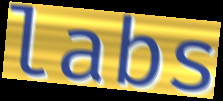
labs